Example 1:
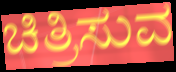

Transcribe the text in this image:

ಚಿತ್ರಿಸುವ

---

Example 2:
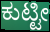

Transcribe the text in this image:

ಕುಟ್ಟೀ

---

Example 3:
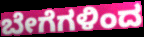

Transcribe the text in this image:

ಬೇಗೆಗಳಿಂದ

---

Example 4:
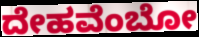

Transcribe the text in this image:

ದೇಹವೆಂಬೋ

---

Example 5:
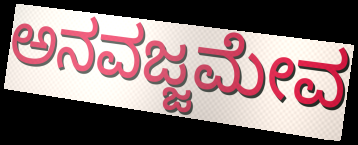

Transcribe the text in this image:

ಅನವಜ್ಜಮೇವ